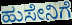
ಹುಸೇನಿಗೆ